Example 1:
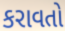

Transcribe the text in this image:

કરાવતો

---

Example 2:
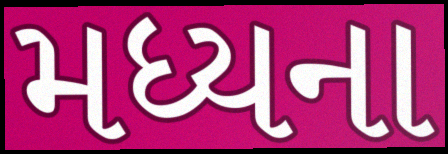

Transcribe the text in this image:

મધ્યના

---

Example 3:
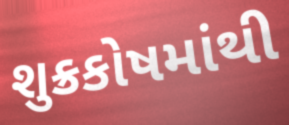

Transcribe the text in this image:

શુક્રકોષમાંથી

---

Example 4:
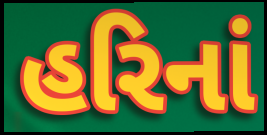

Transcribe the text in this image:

હરિનાં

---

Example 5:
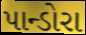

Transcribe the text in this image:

પાન્ડોરા